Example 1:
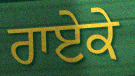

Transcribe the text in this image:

ਰਾਏਕੇ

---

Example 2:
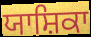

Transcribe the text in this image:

ਯਾਸ਼ਿਕਾ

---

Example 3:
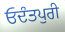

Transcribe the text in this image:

ਓਦੰਤਪੁਰੀ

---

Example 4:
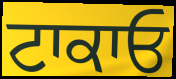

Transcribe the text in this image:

ਟਾਕਾਓ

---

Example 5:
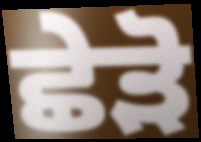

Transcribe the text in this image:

ਛੇੜੋ